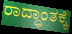
ರಾದ್ಧಾಂತಕ್ಕೆ